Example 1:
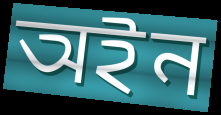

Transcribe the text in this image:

অইন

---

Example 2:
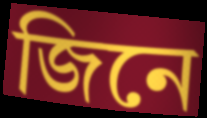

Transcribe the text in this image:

জিনে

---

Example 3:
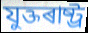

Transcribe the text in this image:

যুক্তৰাষ্ট্ৰ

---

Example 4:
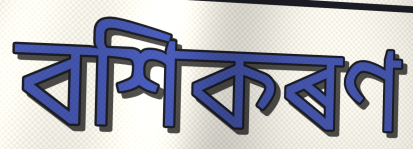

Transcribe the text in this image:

বশিকৰণ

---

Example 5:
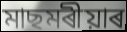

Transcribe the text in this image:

মাছমৰীয়াৰ